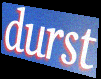
durst